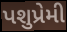
પશુપ્રેમી